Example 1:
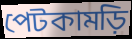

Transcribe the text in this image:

পেটকামড়ি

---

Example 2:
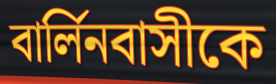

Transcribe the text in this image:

বার্লিনবাসীকে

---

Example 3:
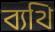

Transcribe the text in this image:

ব্যথি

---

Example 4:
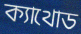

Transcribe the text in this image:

ক্যাথোড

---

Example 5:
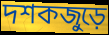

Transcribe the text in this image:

দশকজুড়ে